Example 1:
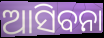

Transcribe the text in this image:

ଆସିବନା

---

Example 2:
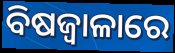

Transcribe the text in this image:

ବିଷଜ୍ୱାଳାରେ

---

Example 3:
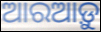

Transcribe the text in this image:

ଆରଆଡ଼ୁ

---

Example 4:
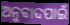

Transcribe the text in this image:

ଅନୁବାଦପାଇଁ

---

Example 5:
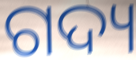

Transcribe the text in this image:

ଗଦ୍ୟ